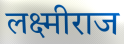
लक्ष्मीराज